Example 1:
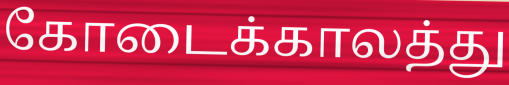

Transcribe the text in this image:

கோடைக்காலத்து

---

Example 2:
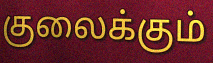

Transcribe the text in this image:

குலைக்கும்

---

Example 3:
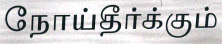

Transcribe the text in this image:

நோய்தீர்க்கும்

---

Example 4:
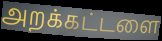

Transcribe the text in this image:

அறக்கட்டளை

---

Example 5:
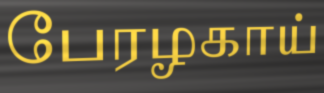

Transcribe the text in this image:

பேரழகாய்